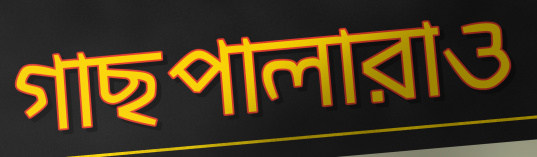
গাছপালারাও